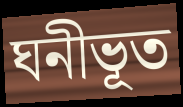
ঘনীভূত